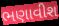
ભણાવીશ